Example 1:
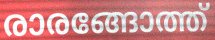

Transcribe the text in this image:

രാരങ്ങോത്ത്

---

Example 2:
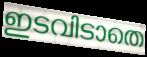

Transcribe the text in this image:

ഇടവിടാതെ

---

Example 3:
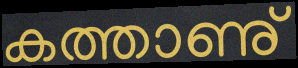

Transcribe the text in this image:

കത്താണു്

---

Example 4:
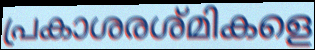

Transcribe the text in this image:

പ്രകാശരശ്മികളെ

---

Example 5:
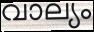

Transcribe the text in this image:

വാല്യം